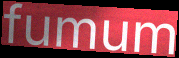
fumum